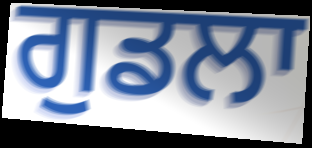
ਗੁਡਲਾ